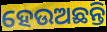
ହେଉଅଛନ୍ତି